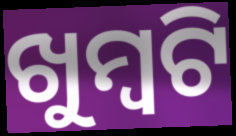
ଖୁମ୍ବଟି